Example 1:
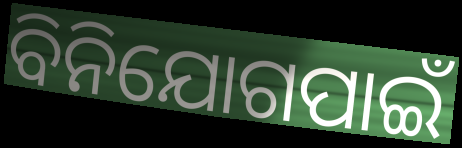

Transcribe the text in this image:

ବିନିଯୋଗପାଇଁ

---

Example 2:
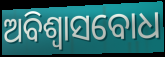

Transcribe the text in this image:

ଅବିଶ୍ୱାସବୋଧ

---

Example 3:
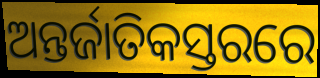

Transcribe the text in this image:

ଅନ୍ତର୍ଜାତିକସ୍ତରରେ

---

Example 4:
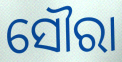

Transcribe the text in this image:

ସୌରା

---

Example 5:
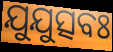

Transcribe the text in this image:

ଯୁଯୁତ୍ସବଃ